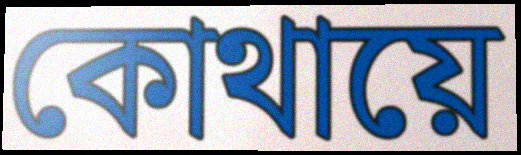
কোথায়ে